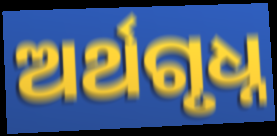
ଅର୍ଥଗୃଧ୍ନ